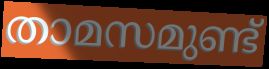
താമസമുണ്ട്